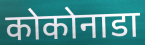
कोकोनाडा